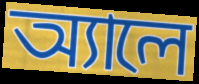
অ্যালে